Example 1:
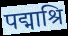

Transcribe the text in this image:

पद्माश्रि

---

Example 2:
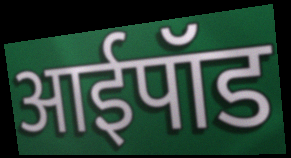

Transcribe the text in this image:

आईपॉड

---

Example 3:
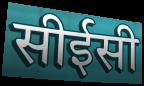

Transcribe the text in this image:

सीईसी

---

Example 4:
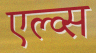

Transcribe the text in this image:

एल्व्स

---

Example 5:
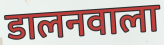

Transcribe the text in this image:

डालनवाला